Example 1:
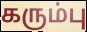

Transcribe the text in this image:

கரும்பு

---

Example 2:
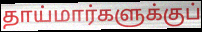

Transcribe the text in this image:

தாய்மார்களுக்குப்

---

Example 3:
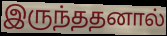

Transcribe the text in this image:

இருந்ததனால்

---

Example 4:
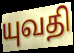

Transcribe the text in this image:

யுவதி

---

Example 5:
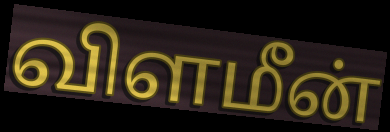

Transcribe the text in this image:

விளமீன்